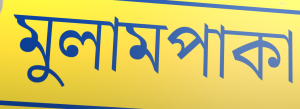
মুলামপাকা